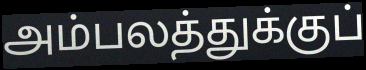
அம்பலத்துக்குப்